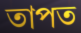
তাপত